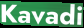
Kavadi